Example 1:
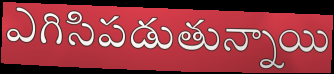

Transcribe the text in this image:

ఎగిసిపడుతున్నాయి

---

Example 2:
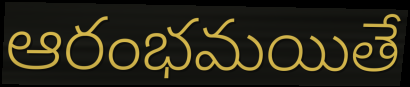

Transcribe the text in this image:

ఆరంభమయితే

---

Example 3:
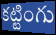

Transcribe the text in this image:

కట్టింగు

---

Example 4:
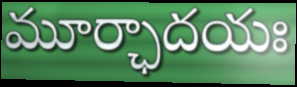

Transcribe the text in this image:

మూర్ఛాదయః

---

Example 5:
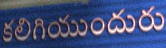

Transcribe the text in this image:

కలిగియుందురు